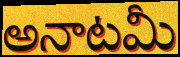
అనాటమీ